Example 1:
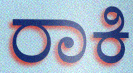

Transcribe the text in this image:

ರಾಕಿ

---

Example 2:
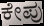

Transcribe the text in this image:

ಕೇಪು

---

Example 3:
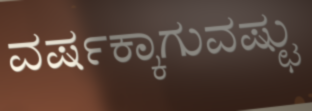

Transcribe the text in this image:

ವರ್ಷಕ್ಕಾಗುವಷ್ಟು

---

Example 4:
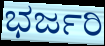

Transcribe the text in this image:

ಭರ್ಜರಿ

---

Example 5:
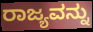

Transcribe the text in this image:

ರಾಜ್ಯವನ್ನು